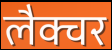
लैक्चर